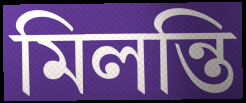
মিলন্তি